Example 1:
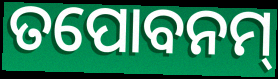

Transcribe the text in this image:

ତପୋବନମ୍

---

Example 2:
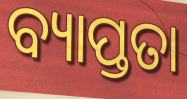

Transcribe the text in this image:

ବ୍ୟାପ୍ତତା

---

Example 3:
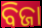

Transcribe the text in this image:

ବିଜା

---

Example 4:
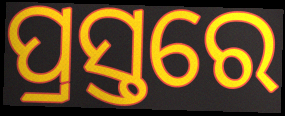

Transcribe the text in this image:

ପ୍ରସ୍ତରେ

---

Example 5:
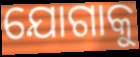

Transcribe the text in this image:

ଯୋଗାକୁ